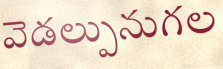
వెడల్పునుగల